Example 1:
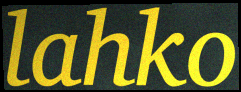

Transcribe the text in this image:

lahko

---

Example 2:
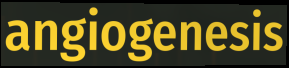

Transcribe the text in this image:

angiogenesis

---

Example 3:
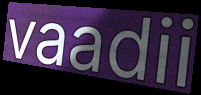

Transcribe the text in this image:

vaadii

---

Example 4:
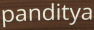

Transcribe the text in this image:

panditya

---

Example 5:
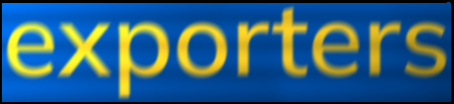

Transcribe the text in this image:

exporters